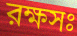
রক্ষসঃ